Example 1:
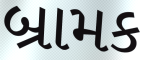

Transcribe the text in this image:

બ્રામક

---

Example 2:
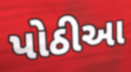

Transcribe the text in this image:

પોઠીઆ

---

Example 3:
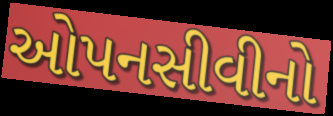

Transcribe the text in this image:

ઓપનસીવીનો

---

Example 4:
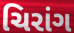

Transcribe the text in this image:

ચિરાંગ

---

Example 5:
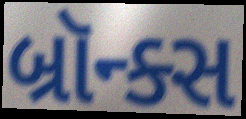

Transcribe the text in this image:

બ્રૉન્ક્સ